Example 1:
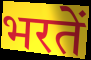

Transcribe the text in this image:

भरतें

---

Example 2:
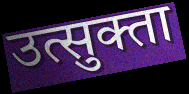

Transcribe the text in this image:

उत्सुक्ता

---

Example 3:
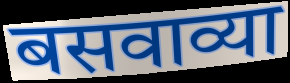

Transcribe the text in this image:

बसवाव्या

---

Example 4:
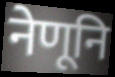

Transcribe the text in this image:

नेणूनि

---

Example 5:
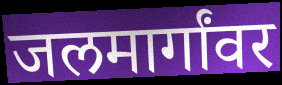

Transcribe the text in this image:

जलमार्गांवर